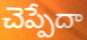
చెప్పేదా